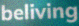
beliving